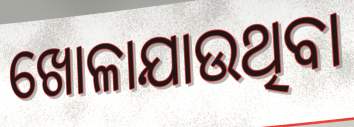
ଖୋଳାଯାଉଥିବା